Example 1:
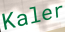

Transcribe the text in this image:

Kaler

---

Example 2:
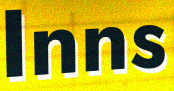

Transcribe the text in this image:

Inns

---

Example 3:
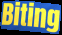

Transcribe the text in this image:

Biting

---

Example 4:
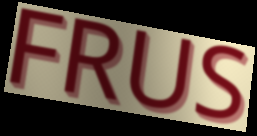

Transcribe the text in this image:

FRUS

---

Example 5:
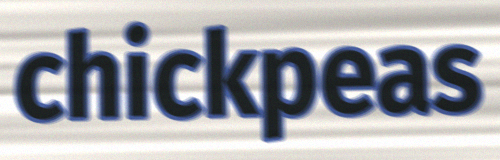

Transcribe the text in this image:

chickpeas